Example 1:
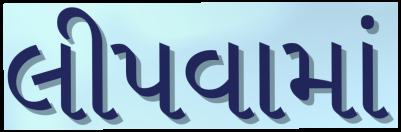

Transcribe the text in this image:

લીપવામાં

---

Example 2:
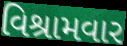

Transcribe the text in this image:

વિશ્રામવાર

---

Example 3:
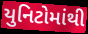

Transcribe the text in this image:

યુનિટોમાંથી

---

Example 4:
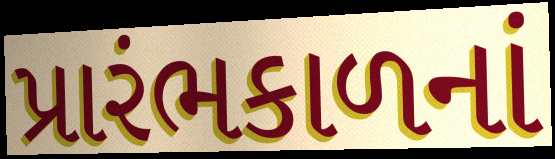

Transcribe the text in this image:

પ્રારંભકાળનાં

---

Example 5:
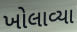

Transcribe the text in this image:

ખોલાવ્યા